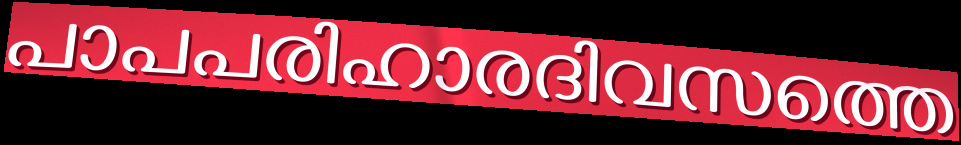
പാപപരിഹാരദിവസത്തെ